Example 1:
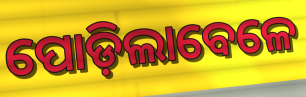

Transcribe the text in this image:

ପୋଡ଼ିଲାବେଳେ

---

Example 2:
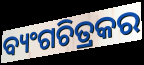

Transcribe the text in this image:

ବ୍ୟଂଗଚିତ୍ରକର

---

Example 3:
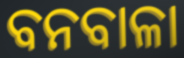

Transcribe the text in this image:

ବନବାଳା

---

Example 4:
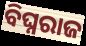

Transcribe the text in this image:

ବିଘ୍ନରାଜ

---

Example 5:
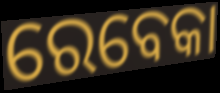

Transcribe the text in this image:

ରେବେକା